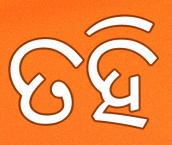
ତହି